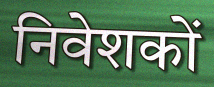
निवेशकों